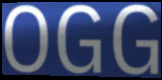
OGG